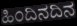
ಹಿಂದಿನದಿನ